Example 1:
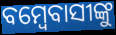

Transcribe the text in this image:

ବମ୍ବେବାସୀଙ୍କୁ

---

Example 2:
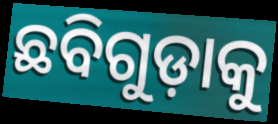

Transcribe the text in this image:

ଛବିଗୁଡ଼ାକୁ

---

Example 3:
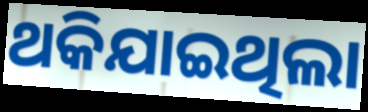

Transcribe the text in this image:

ଥକିଯାଇଥିଲା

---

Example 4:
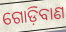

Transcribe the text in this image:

ଗୋଡ଼ିବାଣ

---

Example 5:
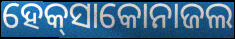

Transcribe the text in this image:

ହେକ୍‌ସାକୋନାଜଲ